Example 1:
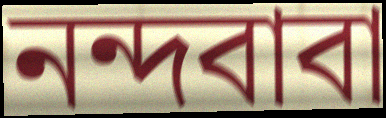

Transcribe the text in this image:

নন্দবাবা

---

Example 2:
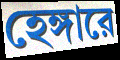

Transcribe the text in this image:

হেঙ্গারে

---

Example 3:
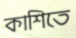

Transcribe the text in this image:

কাশিতে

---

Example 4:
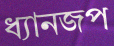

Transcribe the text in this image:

ধ্যানজপ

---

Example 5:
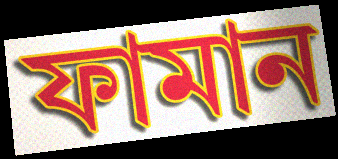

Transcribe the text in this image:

ফামান